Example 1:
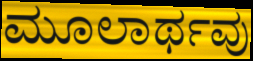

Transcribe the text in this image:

ಮೂಲಾರ್ಥವು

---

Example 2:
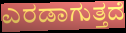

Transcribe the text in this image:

ಎರಡಾಗುತ್ತದೆ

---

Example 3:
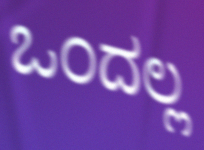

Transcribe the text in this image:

ಒಂದಲ್ಲ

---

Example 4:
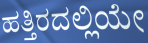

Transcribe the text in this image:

ಹತ್ತಿರದಲ್ಲಿಯೇ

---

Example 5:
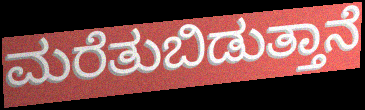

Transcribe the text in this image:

ಮರೆತುಬಿಡುತ್ತಾನೆ